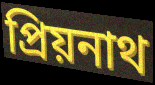
প্রিয়নাথ